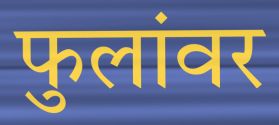
फुलांवर